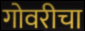
गोवरीचा